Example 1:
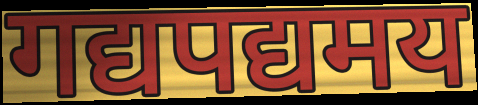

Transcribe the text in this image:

गद्यपद्यमय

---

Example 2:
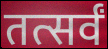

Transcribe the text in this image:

तत्सर्वं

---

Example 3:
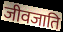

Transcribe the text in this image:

जीवजाति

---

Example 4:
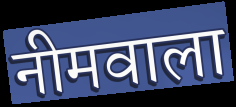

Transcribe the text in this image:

नीमवाला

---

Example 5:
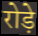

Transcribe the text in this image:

रोड़े